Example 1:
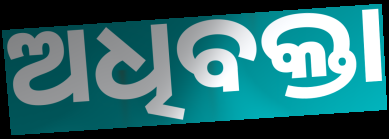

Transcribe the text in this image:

ଅଧିବକ୍ତା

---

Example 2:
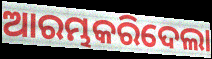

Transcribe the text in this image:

ଆରମ୍ଭକରିଦେଲା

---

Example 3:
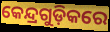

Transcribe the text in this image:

କେନ୍ଦ୍ରଗୁଡ଼ିକରେ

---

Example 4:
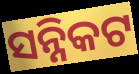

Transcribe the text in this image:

ସନ୍ନିକଟ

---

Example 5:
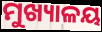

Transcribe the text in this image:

ମୁଖ୍ୟାଳୟ